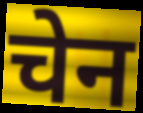
चेन